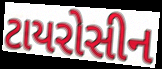
ટાયરોસીન